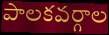
పాలకవర్గాల